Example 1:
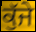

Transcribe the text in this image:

ਕੁੱਜੇ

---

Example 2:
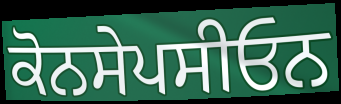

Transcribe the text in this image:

ਕੋਨਸੇਪਸੀਓਨ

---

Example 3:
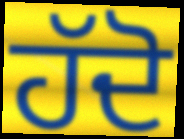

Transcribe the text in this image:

ਹੱਦੋ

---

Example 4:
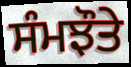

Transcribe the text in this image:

ਸੰਮਝੌਤੇ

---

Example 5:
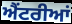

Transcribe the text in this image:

ਐਂਟਰੀਆਂ